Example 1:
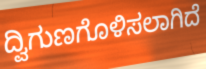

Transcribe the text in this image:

ದ್ವಿಗುಣಗೊಳಿಸಲಾಗಿದೆ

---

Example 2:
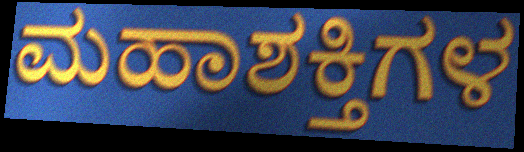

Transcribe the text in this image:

ಮಹಾಶಕ್ತಿಗಳ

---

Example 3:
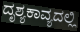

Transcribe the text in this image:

ದೃಶ್ಯಕಾವ್ಯದಲ್ಲಿ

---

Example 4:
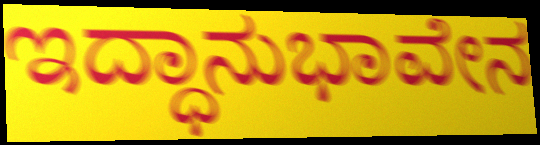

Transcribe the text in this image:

ಇದ್ಧಾನುಭಾವೇನ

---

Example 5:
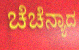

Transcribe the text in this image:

ಚೆಚೆನ್ಯಾದ